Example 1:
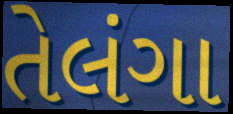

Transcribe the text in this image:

તેલંગા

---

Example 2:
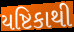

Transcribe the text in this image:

યષ્ટિકાથી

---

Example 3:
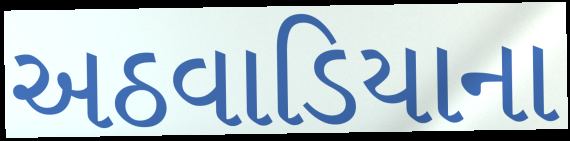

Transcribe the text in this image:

અઠવાડિયાના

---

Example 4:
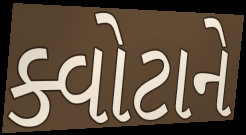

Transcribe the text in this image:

ક્વોટાને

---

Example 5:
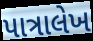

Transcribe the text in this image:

પાત્રાલેખ